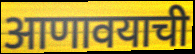
आणावयाची